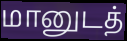
மானுடத்